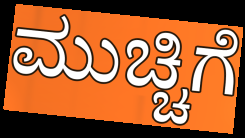
ಮುಚ್ಚಿಗೆ